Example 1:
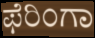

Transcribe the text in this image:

ಫೆರಿಂಗಾ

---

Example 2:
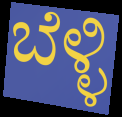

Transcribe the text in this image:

ಬೆಳ್ಳಿ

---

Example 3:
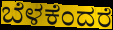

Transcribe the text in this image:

ಬೆಳಕೆಂದರೆ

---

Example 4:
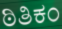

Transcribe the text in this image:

ಠಿತಿಕಂ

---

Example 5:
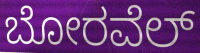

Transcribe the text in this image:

ಬೋರವೆಲ್